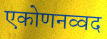
एकोणनव्वद